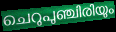
ചെറുപുഞ്ചിരിയും